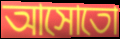
আসোতো